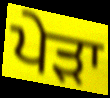
ਪੇੜਾ